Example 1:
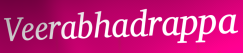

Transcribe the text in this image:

Veerabhadrappa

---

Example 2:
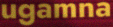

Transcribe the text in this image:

ugamna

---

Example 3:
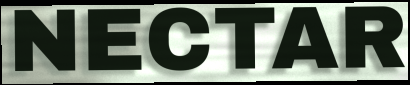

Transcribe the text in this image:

NECTAR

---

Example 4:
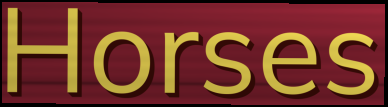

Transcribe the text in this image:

Horses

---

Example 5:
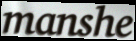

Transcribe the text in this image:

manshe